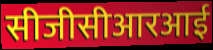
सीजीसीआरआई